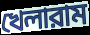
খেলারাম